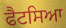
ਫੈਟਸਿਆ